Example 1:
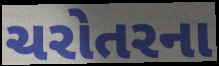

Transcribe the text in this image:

ચરોતરના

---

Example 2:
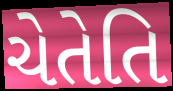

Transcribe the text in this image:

ચેતેતિ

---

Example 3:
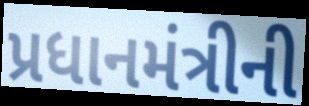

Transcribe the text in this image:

પ્રધાનમંત્રીની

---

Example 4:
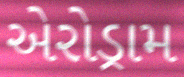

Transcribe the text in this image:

એરોડ્રામ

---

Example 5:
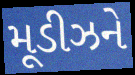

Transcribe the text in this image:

મૂડીઝને